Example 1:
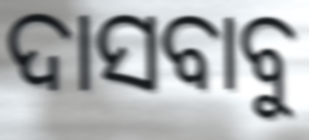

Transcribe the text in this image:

ଦାସବାବୁ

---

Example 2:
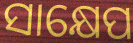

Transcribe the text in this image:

ସାକ୍ଷେପ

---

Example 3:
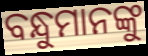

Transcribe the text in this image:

ବନ୍ଧୁମାନଙ୍କୁ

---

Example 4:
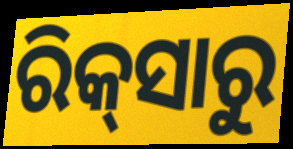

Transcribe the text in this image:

ରିକ୍‌ସାରୁ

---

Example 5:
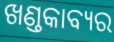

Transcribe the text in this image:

ଖଣ୍ଡକାବ୍ୟର